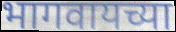
भागवायच्या